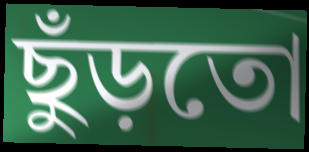
ছুঁড়তো